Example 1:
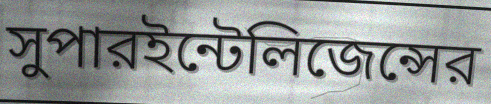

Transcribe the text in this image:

সুপারইন্টেলিজেন্সের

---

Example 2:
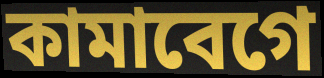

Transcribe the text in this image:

কামাবেগে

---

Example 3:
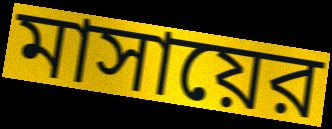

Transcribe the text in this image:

মাসায়ের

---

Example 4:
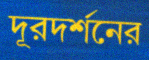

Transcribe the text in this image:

দূরদর্শনের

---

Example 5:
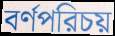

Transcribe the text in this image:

বর্ণপরিচয়